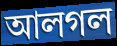
আলগল